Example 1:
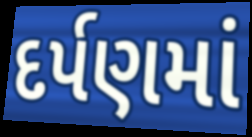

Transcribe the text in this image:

દર્પણમાં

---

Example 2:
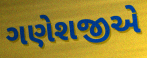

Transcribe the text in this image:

ગણેશજીએ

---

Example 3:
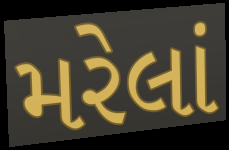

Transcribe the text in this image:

મરેલાં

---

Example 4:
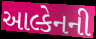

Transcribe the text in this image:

આલ્કેનની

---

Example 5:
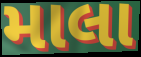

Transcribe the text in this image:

માલા